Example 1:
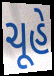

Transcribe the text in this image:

ચૂહે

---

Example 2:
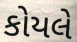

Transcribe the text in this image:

કોયલે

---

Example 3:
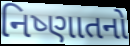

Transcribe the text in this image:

નિષ્ણાતનો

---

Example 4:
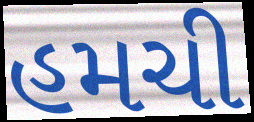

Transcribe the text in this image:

હમચી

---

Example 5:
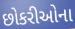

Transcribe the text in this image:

છોકરીઓના